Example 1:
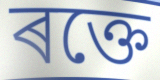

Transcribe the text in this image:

ৰক্তে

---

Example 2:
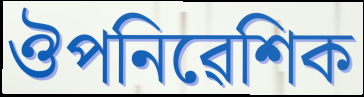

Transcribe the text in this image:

ঔপনিৱেশিক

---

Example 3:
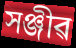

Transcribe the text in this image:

সঞ্জীৱ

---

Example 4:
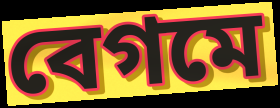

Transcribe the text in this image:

বেগমে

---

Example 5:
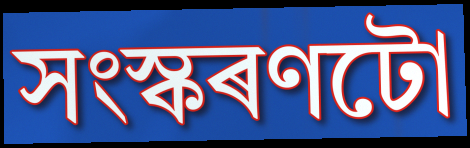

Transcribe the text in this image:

সংস্কৰণটো